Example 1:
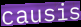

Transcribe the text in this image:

causis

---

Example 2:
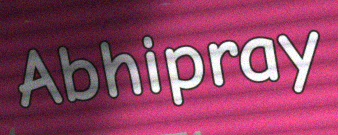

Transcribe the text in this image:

Abhipray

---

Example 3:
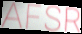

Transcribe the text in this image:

AFSR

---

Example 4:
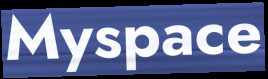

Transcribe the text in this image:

Myspace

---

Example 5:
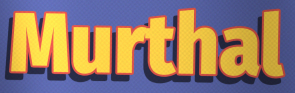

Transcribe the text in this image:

Murthal